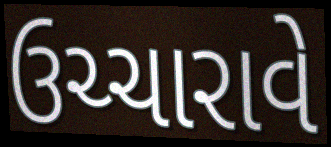
ઉચ્ચારાવે